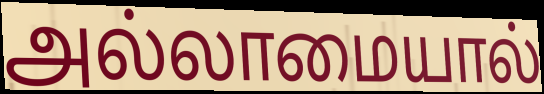
அல்லாமையால்